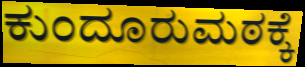
ಕುಂದೂರುಮಠಕ್ಕೆ